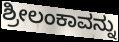
ಶ್ರೀಲಂಕಾವನ್ನು